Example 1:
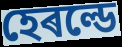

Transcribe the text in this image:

হেৰল্ডে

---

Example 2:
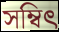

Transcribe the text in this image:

সম্বিৎ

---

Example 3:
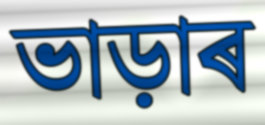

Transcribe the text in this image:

ভাড়াৰ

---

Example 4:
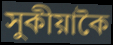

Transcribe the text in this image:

সুকীয়াকৈ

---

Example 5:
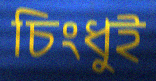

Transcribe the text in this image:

চিংধুই